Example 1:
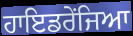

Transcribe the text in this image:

ਹਾਇਡਰੇਂਜਿਆ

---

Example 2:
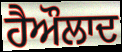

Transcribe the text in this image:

ਹੈਔਲਾਦ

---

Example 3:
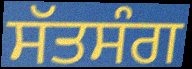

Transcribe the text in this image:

ਸੱਤਸੰਗ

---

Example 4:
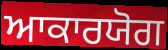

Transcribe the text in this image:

ਆਕਾਰਯੋਗ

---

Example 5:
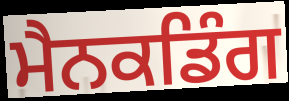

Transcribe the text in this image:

ਮੈਨਕਡਿੰਗ